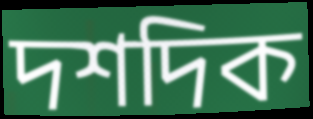
দশদিক